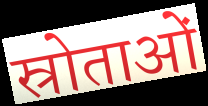
स्रोताओं